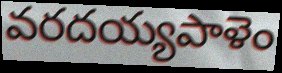
వరదయ్యపాళెం